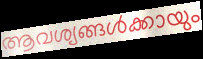
ആവശ്യങ്ങൾക്കായും